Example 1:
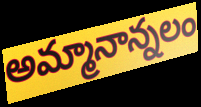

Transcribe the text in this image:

అమ్మానాన్నలం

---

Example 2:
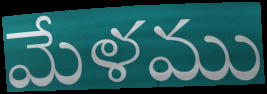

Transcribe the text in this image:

మేళము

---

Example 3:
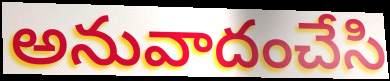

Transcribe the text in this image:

అనువాదంచేసి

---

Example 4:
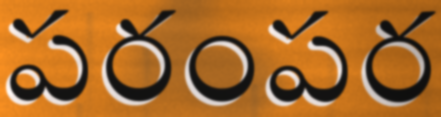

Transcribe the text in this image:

పరంపర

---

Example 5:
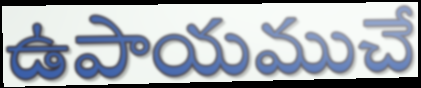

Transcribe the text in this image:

ఉపాయముచే